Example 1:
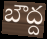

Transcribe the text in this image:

బౌద్ద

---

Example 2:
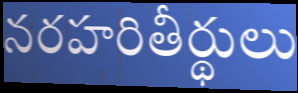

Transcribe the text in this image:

నరహరితీర్థులు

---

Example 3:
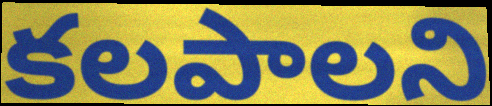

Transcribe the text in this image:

కలపాలని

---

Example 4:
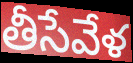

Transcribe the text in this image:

తీసేవేళ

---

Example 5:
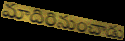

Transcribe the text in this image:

మాదిరినుంచాడు